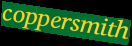
coppersmith